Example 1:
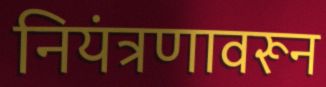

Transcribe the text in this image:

नियंत्रणावरून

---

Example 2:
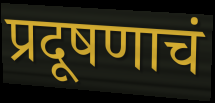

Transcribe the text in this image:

प्रदूषणाचं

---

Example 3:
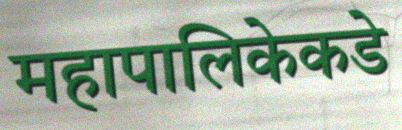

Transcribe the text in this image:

महापालिकेकडे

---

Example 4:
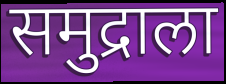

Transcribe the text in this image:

समुद्राला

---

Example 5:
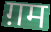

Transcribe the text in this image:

ग़म